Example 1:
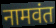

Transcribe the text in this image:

नामवंत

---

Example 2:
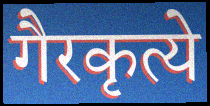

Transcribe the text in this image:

गैरकृत्ये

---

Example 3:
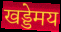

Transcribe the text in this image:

खड्डेमय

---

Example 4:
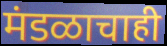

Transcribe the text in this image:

मंडळाचाही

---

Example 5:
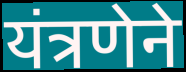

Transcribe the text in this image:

यंत्रणेने